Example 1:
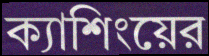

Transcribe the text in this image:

ক্যাশিংয়ের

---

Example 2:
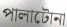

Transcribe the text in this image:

পালাটোনা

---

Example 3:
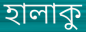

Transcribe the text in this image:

হালাকু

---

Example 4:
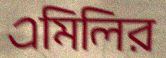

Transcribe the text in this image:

এমিলির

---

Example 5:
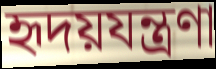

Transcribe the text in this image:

হৃদয়যন্ত্রণা